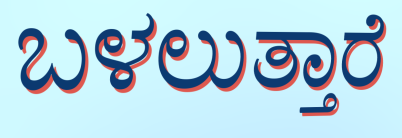
ಬಳಲುತ್ತಾರೆ